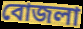
বোজলা